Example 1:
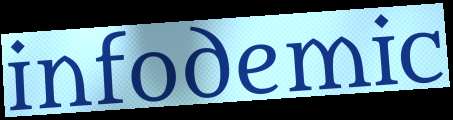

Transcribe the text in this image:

infodemic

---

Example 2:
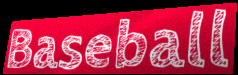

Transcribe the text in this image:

Baseball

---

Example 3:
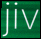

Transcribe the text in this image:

jiv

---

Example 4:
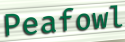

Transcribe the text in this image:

Peafowl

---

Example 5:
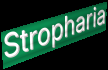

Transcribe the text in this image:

Stropharia